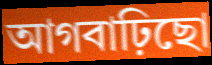
আগবাঢ়িছো